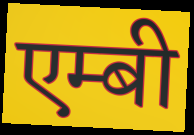
एम्बी